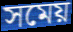
সমেয়